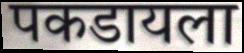
पकडायला